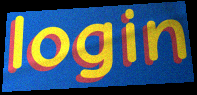
login